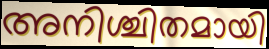
അനിശ്ചിതമായി